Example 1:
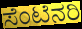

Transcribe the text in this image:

ಸೆಂಟೆನರಿ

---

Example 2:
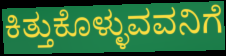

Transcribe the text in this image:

ಕಿತ್ತುಕೊಳ್ಳುವವನಿಗೆ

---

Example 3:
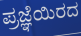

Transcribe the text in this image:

ಪ್ರಜ್ಞೆಯಿರದ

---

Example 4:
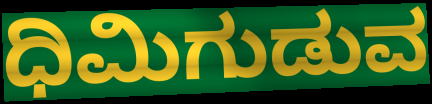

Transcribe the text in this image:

ಧಿಮಿಗುಡುವ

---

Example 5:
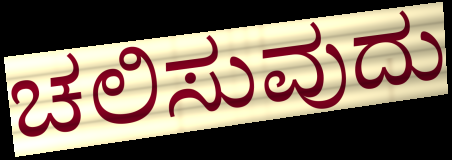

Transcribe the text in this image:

ಚಲಿಸುವುದು